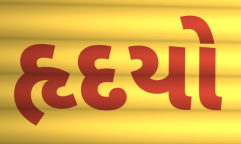
હૃદયો